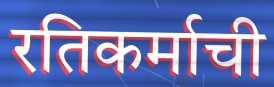
रतिकर्माची